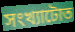
সংখ্যাটোত